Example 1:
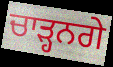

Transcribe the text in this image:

ਚਾੜ੍ਹਨਗੇ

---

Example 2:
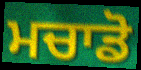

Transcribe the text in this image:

ਮਚਾਡੋ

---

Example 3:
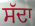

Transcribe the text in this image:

ਸੱਦਾ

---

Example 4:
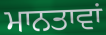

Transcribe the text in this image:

ਮਾਨਤਾਵਾਂ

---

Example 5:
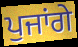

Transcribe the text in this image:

ਪੁਜਾਂਗੇ